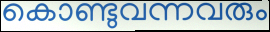
കൊണ്ടുവന്നവരും